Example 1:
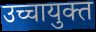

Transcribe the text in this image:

उच्चायुक्त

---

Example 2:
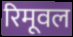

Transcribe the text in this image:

रिमूवल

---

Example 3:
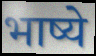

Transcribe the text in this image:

भाष्ये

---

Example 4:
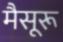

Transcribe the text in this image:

मैसूरू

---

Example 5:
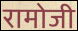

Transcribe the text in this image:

रामोजी